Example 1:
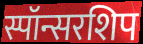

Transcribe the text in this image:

स्पॉन्सरशिप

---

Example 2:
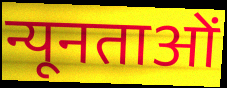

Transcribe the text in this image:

न्यूनताओं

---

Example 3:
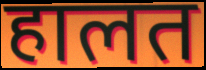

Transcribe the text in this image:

हालत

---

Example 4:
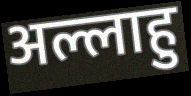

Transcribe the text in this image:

अल्लाहु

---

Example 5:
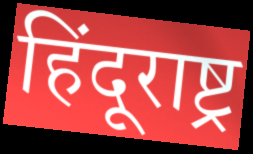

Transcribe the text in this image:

हिंदूराष्ट्र